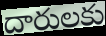
దారులకు